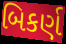
બિકર્ણ